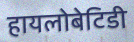
हायलोबेटिडी